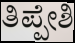
ತಿಪ್ಪೇಶಿ